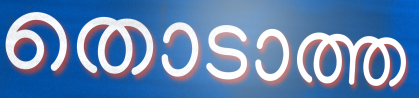
തൊടാത്ത